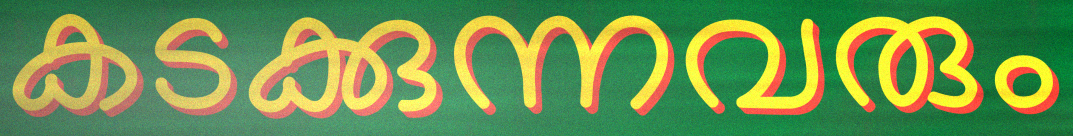
കടക്കുന്നവരും